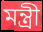
মন্ত্ৰী